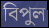
বিপুল